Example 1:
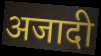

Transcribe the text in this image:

अजादी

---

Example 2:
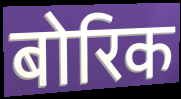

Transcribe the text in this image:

बोरिक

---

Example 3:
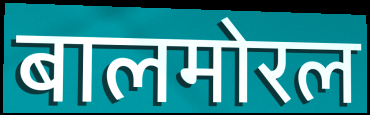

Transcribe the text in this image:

बालमोरल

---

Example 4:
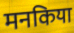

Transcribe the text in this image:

मनकिया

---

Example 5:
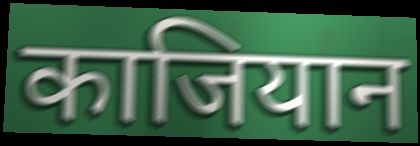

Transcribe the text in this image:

काजियान